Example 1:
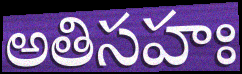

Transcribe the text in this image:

అతిసహః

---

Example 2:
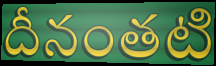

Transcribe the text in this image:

దీనంతటి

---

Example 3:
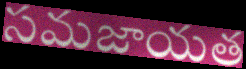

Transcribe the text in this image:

సమజాయత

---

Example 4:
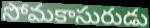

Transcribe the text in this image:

సోమకాసురుడు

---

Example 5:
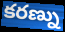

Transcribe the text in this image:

కరణ్ను